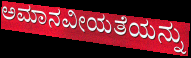
ಅಮಾನವೀಯತೆಯನ್ನು